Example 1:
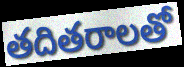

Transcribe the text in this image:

తదితరాలతో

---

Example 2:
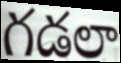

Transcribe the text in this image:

గడలా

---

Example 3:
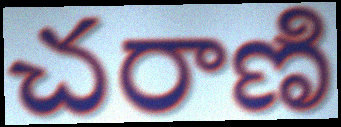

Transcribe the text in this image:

చరాణి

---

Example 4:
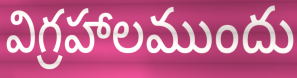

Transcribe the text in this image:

విగ్రహాలముందు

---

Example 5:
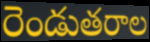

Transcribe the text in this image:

రెండుతరాల